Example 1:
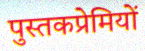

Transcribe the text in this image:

पुस्तकप्रेमियों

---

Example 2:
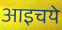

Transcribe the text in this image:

आइचये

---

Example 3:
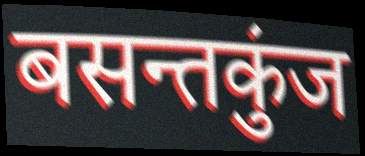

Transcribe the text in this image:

बसन्तकुंज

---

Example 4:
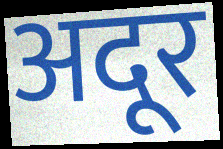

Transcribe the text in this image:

अदूर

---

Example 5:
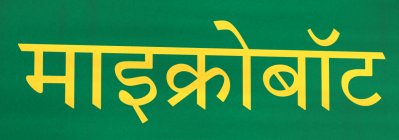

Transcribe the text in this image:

माइक्रोबॉट